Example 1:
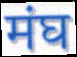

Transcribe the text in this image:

मंघ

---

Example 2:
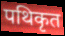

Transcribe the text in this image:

पथिकृत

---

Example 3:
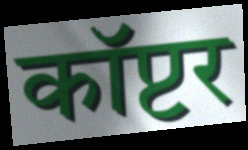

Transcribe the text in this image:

कॉप्टर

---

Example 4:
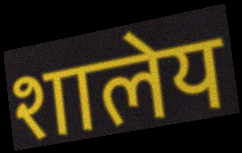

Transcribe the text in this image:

शालेय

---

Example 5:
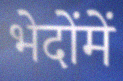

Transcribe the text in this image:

भेदोंमें